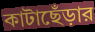
কাটাছেঁড়ার